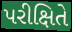
પરીક્ષિતે